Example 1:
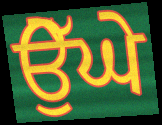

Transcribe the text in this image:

ਉੇੱਘੇ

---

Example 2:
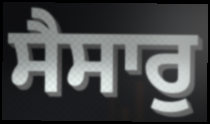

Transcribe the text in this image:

ਸੈਸਾਰੁ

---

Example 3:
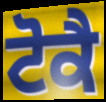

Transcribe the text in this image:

ਟੋਕੈ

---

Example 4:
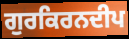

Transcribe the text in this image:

ਗੁਰਕਿਰਨਦੀਪ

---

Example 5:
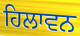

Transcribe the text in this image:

ਹਿਲਾਵਨ